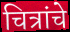
चित्रांचे